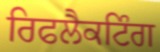
ਰਿਫਲੈਕਟਿੰਗ